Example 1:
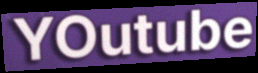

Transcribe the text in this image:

YOutube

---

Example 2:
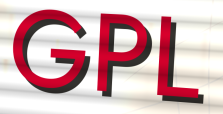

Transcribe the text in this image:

GPL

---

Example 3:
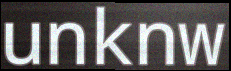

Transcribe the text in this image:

unknw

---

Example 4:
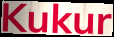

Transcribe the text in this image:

Kukur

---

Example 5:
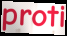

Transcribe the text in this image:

proti